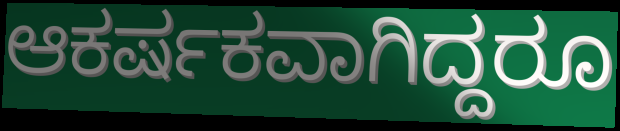
ಆಕರ್ಷಕವಾಗಿದ್ದರೂ